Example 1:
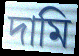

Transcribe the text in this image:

দামি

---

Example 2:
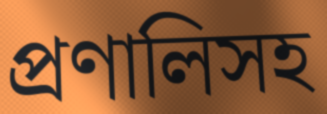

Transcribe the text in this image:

প্রণালিসহ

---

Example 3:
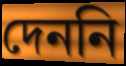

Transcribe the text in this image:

দেননি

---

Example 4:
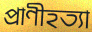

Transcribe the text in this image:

প্রাণীহত্যা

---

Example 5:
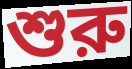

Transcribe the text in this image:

শুরু